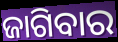
ଜାଗିବାର